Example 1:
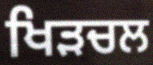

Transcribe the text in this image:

ਖਿੜਚਲ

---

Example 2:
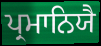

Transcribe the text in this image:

ਪ੍ਰਮਾਨਿਯੈ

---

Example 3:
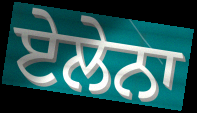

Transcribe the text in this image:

ਏਲੇਨਾ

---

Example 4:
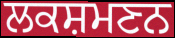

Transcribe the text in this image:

ਲਕਸ਼ਮਣਨ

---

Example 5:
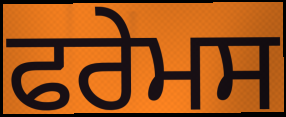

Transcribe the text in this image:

ਫਰੇਮਸ